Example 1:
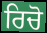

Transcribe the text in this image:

ਰਿਚੋ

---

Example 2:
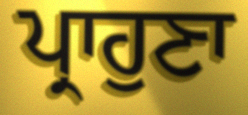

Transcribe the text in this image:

ਪ੍ਰਾਹੁਣਾ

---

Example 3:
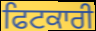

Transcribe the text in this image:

ਫਿਟਕਾਰੀ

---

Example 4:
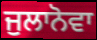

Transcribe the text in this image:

ਜੁਲਾਨੋਵਾ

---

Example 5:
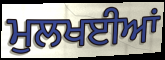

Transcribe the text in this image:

ਮੁਲਖਈਆਂ